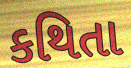
કથિતા